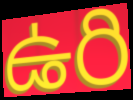
ఉరి